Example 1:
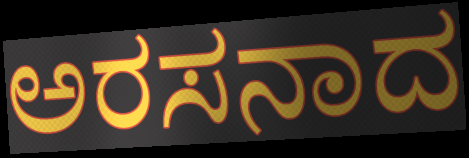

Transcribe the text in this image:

ಅರಸನಾದ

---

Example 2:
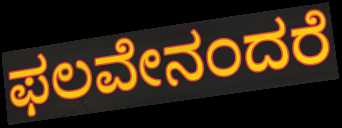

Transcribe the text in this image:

ಫಲವೇನಂದರೆ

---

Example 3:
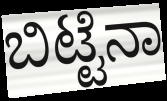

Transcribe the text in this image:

ಬಿಟ್ಟೆನಾ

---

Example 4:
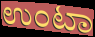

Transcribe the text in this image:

ಉಂಟಾ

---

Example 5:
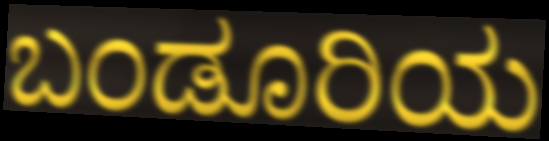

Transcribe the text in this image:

ಬಂಡೂರಿಯ